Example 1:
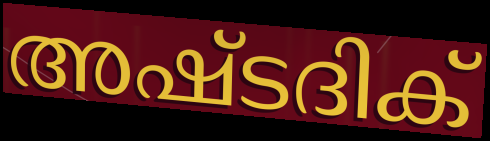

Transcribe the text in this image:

അഷ്ടദിക്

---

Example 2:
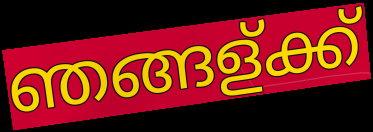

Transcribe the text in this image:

ഞങ്ങള്ക്ക്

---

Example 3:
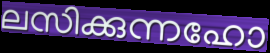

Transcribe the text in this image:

ലസിക്കുന്നഹോ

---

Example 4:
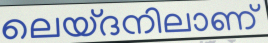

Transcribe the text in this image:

ലെയ്ദനിലാണ്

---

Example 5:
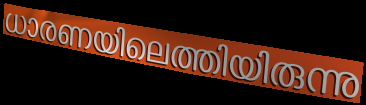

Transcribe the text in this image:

ധാരണയിലെത്തിയിരുന്നു